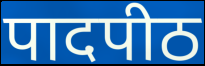
पादपीठ